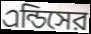
এন্ডিসের